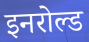
इनरोल्ड